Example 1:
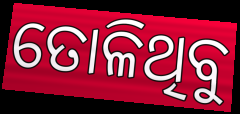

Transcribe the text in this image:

ତୋଳିଥିବୁ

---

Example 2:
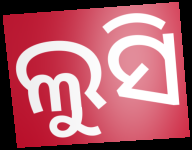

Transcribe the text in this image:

ଲୁସି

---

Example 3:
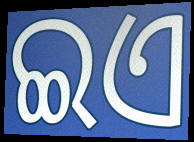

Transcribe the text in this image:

ଇଏ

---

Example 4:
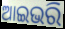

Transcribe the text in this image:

ଆଇଭରି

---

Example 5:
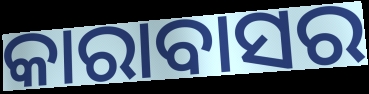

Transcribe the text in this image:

କାରାବାସର